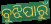
ବୁଝିପାରୁଁ